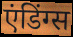
एंडिंग्स